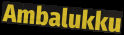
Ambalukku